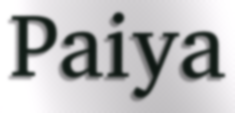
Paiya